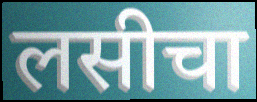
लसीचा